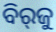
ବିର୍‌ଜୁ